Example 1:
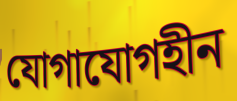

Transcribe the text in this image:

যোগাযোগহীন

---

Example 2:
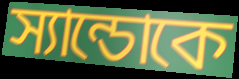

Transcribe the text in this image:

স্যান্ডোকে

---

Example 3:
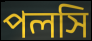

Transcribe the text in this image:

পলসি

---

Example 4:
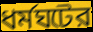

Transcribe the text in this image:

ধর্মঘটের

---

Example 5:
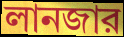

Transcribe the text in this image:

লানজার